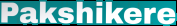
Pakshikere